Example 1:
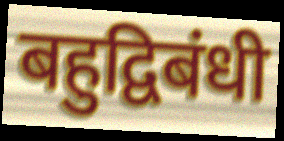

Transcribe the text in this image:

बहुद्विबंधी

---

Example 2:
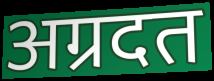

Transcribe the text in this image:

अग्रदत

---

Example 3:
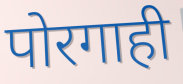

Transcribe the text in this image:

पोरगाही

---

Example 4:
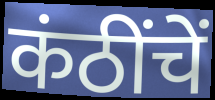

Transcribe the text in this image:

कंठींचें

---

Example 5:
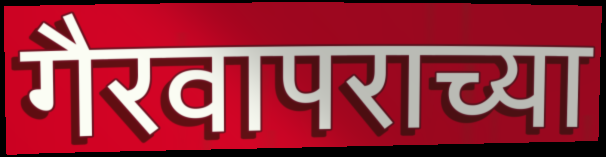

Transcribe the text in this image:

गैरवापराच्या